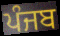
ਪੰਜਬ